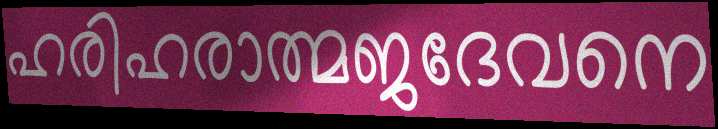
ഹരിഹരാത്മജദേവനെ